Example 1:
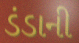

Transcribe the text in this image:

ડંડાની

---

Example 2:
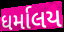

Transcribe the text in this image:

ધર્માલય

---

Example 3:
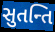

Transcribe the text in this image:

સુતન્તિ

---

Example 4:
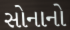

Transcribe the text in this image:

સોનાનો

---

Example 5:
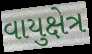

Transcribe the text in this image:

વાયુક્ષેત્ર